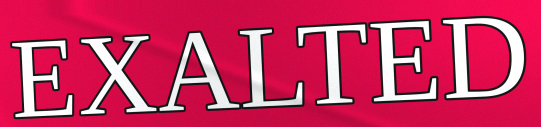
EXALTED